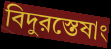
বিদুরস্তেষাং